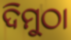
ଦିମୁଠା